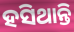
ହସିଥାନ୍ତି